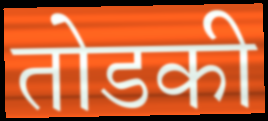
तोडकी